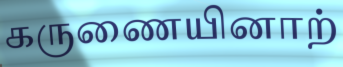
கருணையினாற்